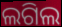
ଲଗିଲ